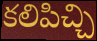
కలిపిచ్చి